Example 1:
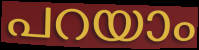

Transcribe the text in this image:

പറയാം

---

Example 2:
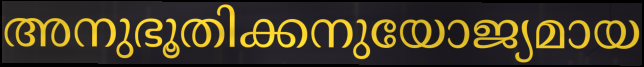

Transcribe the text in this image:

അനുഭൂതിക്കനുയോജ്യമായ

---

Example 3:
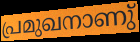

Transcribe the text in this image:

പ്രമുഖനാണു്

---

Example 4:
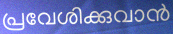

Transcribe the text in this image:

പ്രവേശിക്കുവാൻ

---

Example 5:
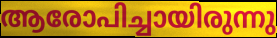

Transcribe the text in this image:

ആരോപിച്ചായിരുന്നു